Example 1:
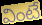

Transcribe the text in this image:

వింటే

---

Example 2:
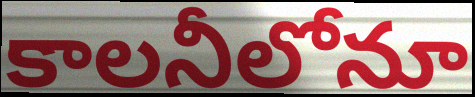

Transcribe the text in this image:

కాలనీలోనూ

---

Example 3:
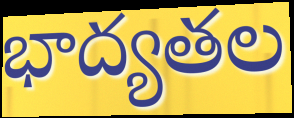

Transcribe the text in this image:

భాద్యతల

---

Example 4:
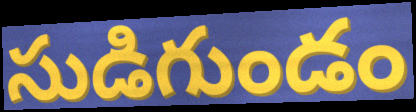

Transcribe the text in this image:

సుడిగుండం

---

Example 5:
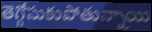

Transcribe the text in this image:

తెగ్గోసుకుపోతున్నాయి